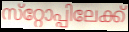
സ്‌റ്റോപ്പിലേക്ക്